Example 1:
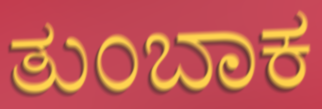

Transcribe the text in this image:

ತುಂಬಾಕ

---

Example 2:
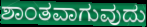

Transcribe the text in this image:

ಶಾಂತವಾಗುವುದು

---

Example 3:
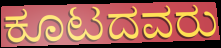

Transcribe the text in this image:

ಕೂಟದವರು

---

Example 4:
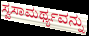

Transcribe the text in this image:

ಸ್ವಸಾಮರ್ಥ್ಯವನ್ನು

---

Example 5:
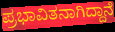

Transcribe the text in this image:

ಪ್ರಭಾವಿತನಾಗಿದ್ದಾನೆ